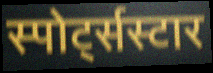
स्पोर्ट्सस्टार